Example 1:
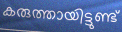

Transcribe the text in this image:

കരുത്തായിട്ടുണ്ട്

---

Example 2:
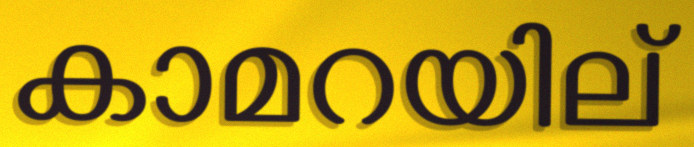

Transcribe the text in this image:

കാമറയില്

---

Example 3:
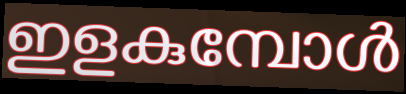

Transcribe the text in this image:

ഇളകുമ്പോൾ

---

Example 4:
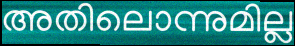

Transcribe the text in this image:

അതിലൊന്നുമില്ല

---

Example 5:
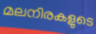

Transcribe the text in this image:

മലനിരകളുടെ